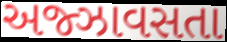
અજ્ઝાવસતા